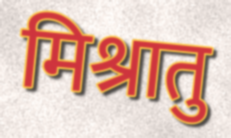
मिश्रातु